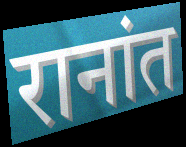
रानांत